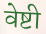
वेष्टी